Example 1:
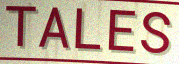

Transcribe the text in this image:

TALES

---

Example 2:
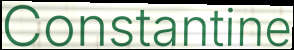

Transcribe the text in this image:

Constantine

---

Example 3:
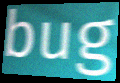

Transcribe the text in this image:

bug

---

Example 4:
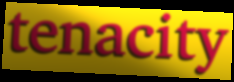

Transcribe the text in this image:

tenacity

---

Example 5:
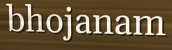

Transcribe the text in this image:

bhojanam